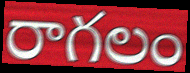
రాగలం